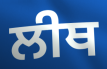
ਲੀਥ